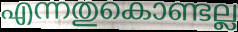
എന്നതുകൊണ്ടല്ല